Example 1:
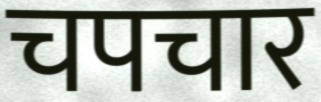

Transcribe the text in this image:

चपचार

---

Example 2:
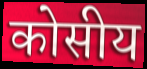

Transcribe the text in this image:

कोसीय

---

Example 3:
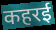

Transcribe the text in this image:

कहरई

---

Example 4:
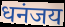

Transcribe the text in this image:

धनंजय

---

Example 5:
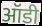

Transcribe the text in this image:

ऑडी